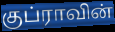
குப்ராவின்